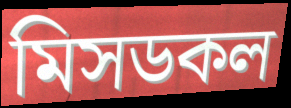
মিসডকল